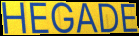
HEGADE